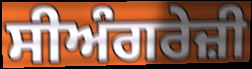
ਸੀਅੰਗਰੇਜ਼ੀ